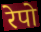
रेपो